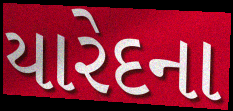
યારેદના